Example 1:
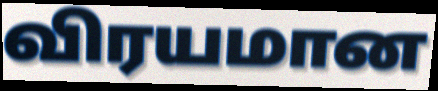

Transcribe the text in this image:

விரயமான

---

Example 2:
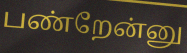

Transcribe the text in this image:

பண்றேன்னு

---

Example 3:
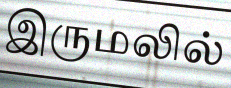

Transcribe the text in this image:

இருமலில்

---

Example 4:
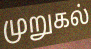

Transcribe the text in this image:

முறுகல்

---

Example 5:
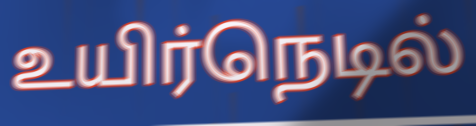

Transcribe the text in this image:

உயிர்நெடில்